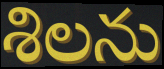
శిలను